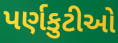
પર્ણકુટીઓ